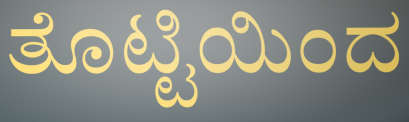
ತೊಟ್ಟಿಯಿಂದ